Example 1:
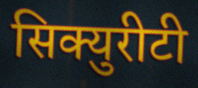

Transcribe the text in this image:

सिक्युरीटी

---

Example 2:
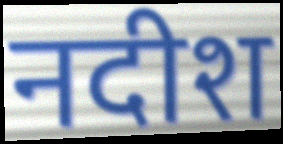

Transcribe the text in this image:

नदीश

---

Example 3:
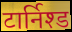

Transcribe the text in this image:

टार्निश्ड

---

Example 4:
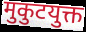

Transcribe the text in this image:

मुकुटयुक्त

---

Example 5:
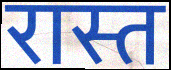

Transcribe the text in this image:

रास्त